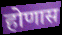
होणास